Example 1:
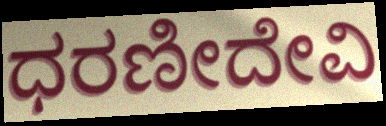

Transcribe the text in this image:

ಧರಣೀದೇವಿ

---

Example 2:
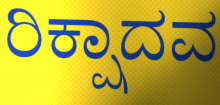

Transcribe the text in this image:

ರಿಕ್ಷಾದವ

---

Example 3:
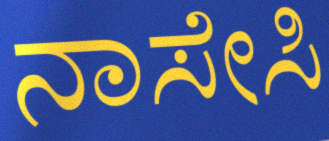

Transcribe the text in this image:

ನಾಸೇಸಿ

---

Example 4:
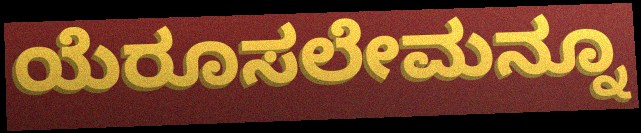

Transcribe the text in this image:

ಯೆರೂಸಲೇಮನ್ನೂ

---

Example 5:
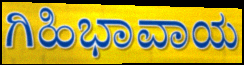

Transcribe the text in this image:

ಗಿಹಿಭಾವಾಯ